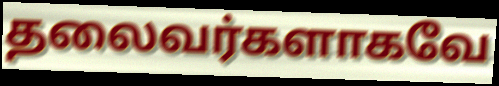
தலைவர்களாகவே